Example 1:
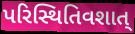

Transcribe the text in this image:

પરિસ્થિતિવશાત્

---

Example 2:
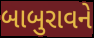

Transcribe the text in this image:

બાબુરાવને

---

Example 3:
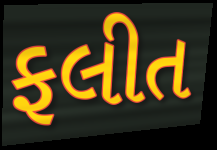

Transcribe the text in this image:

ફલીત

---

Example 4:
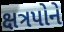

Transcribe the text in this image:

ક્ષત્રપોને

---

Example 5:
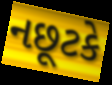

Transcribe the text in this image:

નછૂટકે